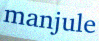
manjule